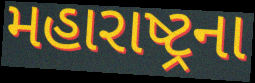
મહારાષ્ટ્રના